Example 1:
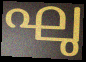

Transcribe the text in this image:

ഘു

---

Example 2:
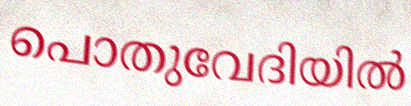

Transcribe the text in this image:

പൊതുവേദിയിൽ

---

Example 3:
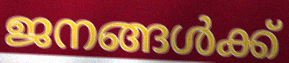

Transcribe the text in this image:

ജനങ്ങൾക്ക്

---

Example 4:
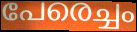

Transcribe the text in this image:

പേരെച്ചം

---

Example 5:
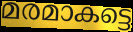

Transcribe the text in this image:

മരമാകട്ടെ